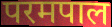
परमपाल